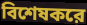
বিশেষকরে